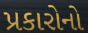
પ્રકારોનો